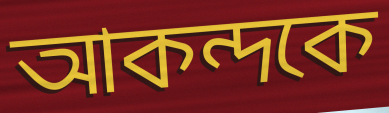
আকন্দকে